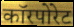
कॉरपोरेट